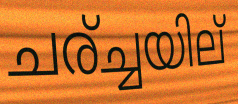
ചര്ച്ചയില്